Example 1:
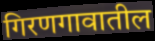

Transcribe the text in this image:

गिरणगावातील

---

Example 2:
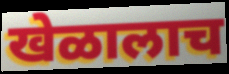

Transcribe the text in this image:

खेळालाच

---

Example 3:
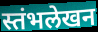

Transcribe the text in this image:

स्तंभलेखन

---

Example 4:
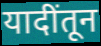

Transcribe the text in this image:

यादींतून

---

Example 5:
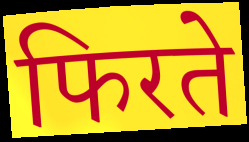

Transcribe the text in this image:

फिरते